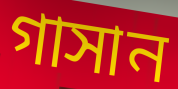
গাসান